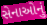
સેનાઓનું